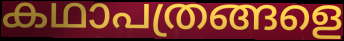
കഥാപത്രങ്ങളെ